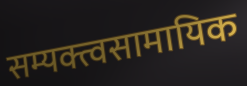
सम्यक्त्वसामायिक